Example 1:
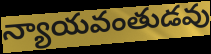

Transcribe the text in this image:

న్యాయవంతుడవు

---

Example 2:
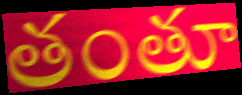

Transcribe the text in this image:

తంతూ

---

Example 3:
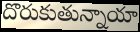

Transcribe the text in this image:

దొరుకుతున్నాయా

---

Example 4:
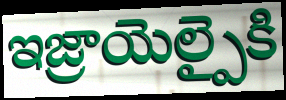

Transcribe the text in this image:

ఇజ్రాయెల్పైకి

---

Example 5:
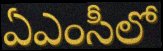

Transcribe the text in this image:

ఏఎంసీలో